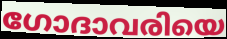
ഗോദാവരിയെ